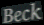
Beck